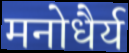
मनोधैर्य